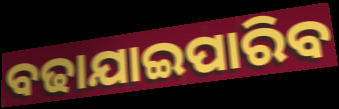
ବଢାଯାଇପାରିବ